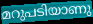
മറുപടിയാണു